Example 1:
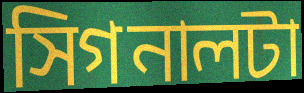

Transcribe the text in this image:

সিগনালটা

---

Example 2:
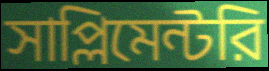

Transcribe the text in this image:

সাপ্লিমেন্টরি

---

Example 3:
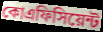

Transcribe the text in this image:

কোএফিসিয়েন্ট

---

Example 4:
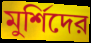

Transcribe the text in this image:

মুর্শিদের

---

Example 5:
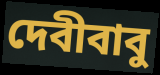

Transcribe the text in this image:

দেবীবাবু